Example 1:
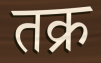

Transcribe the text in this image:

तक्र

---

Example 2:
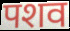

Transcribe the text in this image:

पशव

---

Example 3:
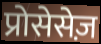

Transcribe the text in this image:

प्रोसेसेज़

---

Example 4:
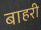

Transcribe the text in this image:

बाहरी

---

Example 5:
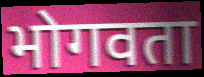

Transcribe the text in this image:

भोगवता